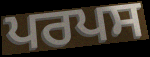
ਪਰਪਸ